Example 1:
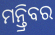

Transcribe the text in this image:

ମନ୍ତ୍ରିବର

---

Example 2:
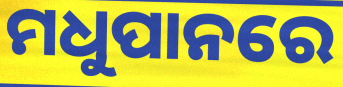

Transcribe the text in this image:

ମଧୁପାନରେ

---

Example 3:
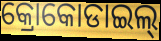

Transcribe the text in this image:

କ୍ରୋକୋଡାଇଲ୍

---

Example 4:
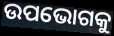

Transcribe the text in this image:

ଉପଭୋଗକୁ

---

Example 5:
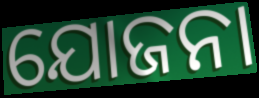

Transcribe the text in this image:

ଯୋଜନା